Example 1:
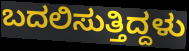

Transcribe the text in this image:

ಬದಲಿಸುತ್ತಿದ್ದಳು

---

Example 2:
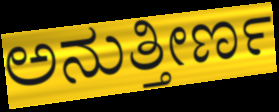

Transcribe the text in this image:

ಅನುತ್ತೀರ್ಣ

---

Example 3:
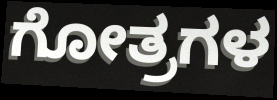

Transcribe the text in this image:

ಗೋತ್ರಗಳ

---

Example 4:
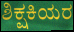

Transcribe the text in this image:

ಶಿಕ್ಷಕಿಯರ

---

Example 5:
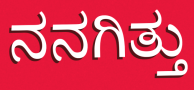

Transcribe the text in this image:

ನನಗಿತ್ತು